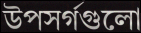
উপসর্গগুলো